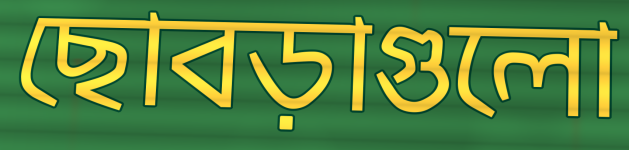
ছোবড়াগুলো